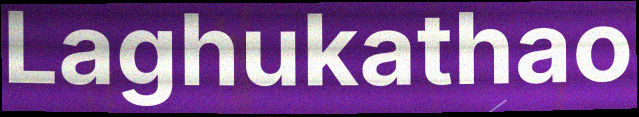
Laghukathao